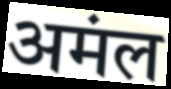
अमंल